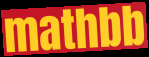
mathbb